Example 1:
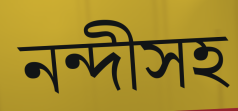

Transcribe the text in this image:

নন্দীসহ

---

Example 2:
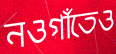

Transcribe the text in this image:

নওগাঁতেও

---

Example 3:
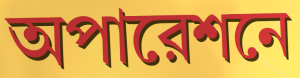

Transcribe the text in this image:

অপারেশনে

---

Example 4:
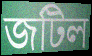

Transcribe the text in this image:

জটিল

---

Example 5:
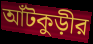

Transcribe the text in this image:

আঁটকুড়ীর